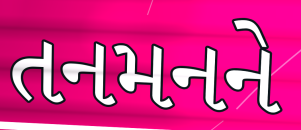
તનમનને